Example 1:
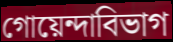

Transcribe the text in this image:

গোয়েন্দাবিভাগ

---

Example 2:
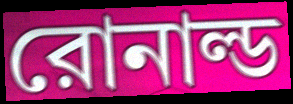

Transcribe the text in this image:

রোনাল্ড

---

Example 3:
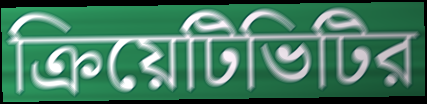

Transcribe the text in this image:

ক্রিয়েটিভিটির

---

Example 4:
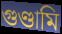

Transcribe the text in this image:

গুণ্ডামি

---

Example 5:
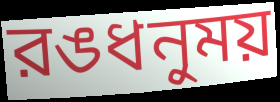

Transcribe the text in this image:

রঙধনুময়